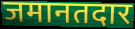
जमानतदार